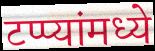
टप्प्यांमध्ये